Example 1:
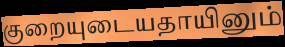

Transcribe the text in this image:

குறையுடையதாயினும்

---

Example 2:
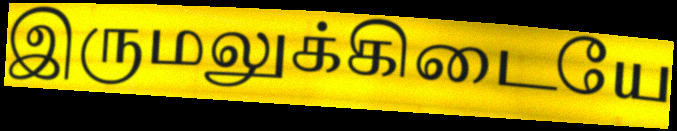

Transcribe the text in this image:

இருமலுக்கிடையே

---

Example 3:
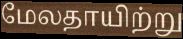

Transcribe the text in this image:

மேலதாயிற்று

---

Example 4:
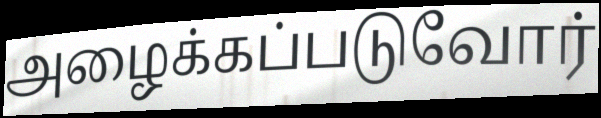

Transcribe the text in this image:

அழைக்கப்படுவோர்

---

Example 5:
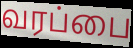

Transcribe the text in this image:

வரப்பை